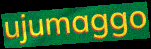
ujumaggo